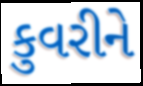
કુવરીને